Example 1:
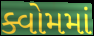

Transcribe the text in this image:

ક્વોમમાં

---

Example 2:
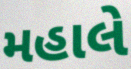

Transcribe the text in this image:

મહાલે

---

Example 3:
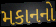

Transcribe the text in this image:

મકાનનો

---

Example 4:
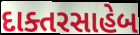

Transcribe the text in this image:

દાક્તરસાહેબ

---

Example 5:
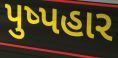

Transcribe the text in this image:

પુષ્પહાર